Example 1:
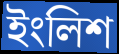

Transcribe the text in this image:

ইংলিশ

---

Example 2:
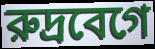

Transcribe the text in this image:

রুদ্রবেগে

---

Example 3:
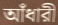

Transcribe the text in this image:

আঁধারী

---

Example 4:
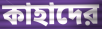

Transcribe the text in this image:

কাহাদের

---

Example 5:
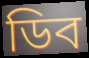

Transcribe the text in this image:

ডিব